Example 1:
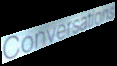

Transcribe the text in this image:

Conversations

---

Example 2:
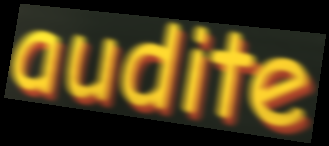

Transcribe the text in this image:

audite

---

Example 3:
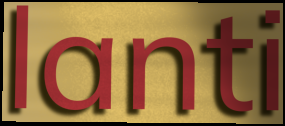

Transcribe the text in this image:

lanti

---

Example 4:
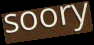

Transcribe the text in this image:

soory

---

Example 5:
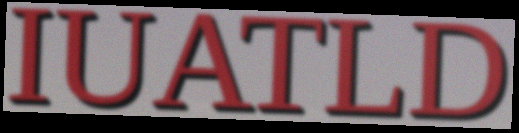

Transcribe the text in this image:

IUATLD